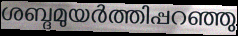
ശബ്ദമുയർത്തിപ്പറഞ്ഞു